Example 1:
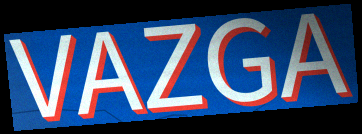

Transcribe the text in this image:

VAZGA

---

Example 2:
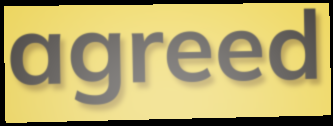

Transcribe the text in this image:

agreed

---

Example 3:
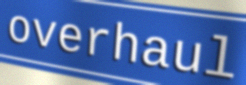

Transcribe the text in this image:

overhaul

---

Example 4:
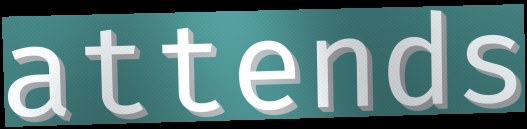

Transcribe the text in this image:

attends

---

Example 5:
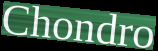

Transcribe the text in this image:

Chondro